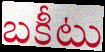
బకీటు